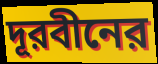
দূরবীনের